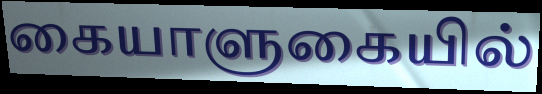
கையாளுகையில்